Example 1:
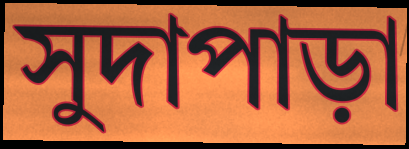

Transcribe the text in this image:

সুদাপাড়া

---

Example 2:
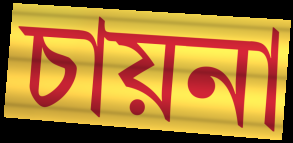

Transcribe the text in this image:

চায়না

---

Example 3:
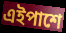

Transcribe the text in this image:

এইপাশে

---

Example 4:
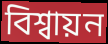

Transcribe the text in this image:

বিশ্বায়ন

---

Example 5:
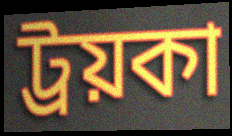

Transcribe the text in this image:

ট্রয়কা